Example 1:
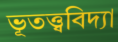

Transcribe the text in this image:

ভূতত্ত্ববিদ্যা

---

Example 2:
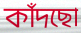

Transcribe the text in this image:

কাঁদছো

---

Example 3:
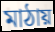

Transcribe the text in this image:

মাঠায়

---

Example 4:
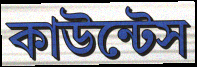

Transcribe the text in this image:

কাউন্টেস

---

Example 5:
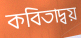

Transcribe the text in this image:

কবিতাদ্বয়